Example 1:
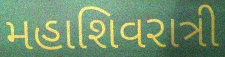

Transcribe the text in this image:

મહાશિવરાત્રી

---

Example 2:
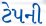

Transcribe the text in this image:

ટેપની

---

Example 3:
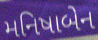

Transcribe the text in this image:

મનિષાબેન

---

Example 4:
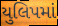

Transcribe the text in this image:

યુલિપમાં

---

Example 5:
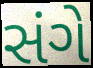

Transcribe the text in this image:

સંગે